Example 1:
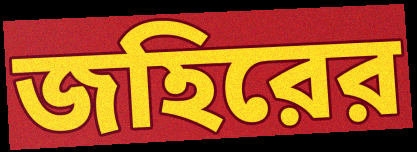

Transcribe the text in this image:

জহিরের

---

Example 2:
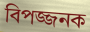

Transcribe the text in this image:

বিপজ্জনক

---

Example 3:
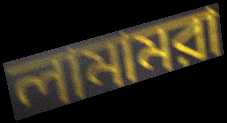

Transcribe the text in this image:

লামামরা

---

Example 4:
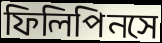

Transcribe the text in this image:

ফিলিপিনসে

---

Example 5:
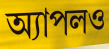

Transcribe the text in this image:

অ্যাপলও